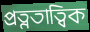
প্ৰত্নতাত্বিক